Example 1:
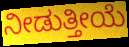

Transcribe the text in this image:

ನೀಡುತ್ತೀಯೆ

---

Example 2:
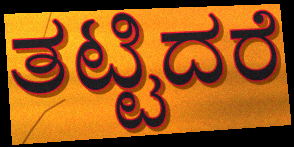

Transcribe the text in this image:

ತಟ್ಟಿದರೆ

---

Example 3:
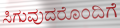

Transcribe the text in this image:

ಸಿಗುವುದರೊಂದಿಗೆ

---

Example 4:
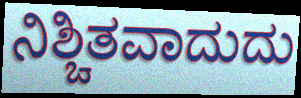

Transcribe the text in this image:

ನಿಶ್ಚಿತವಾದುದು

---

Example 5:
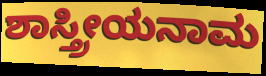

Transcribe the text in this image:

ಶಾಸ್ತ್ರೀಯನಾಮ